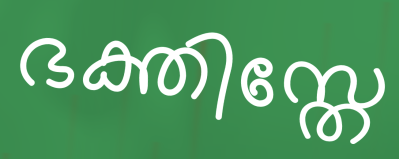
ഭക്തിസ്തേ